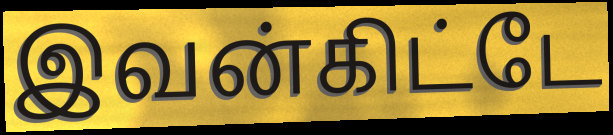
இவன்கிட்டே